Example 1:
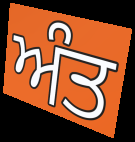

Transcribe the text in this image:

ਅੰਤ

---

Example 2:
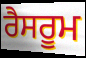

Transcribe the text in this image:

ਰੈਸਰੂਮ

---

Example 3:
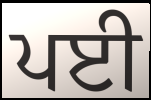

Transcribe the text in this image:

ਪਈ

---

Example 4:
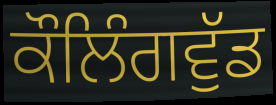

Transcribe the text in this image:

ਕੌਲਿੰਗਵੁੱਡ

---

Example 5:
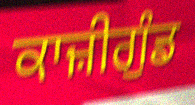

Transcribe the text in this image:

ਕਾਜ਼ੀਗੁੰਡ